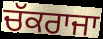
ਚੱਕਰਾਜਾ